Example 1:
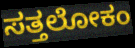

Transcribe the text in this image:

ಸತ್ತಲೋಕಂ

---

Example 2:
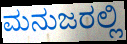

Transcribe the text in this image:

ಮನುಜರಲ್ಲಿ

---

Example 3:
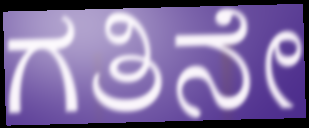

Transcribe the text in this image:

ಗತಿನೇ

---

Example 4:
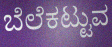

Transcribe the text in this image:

ಬೆಲೆಕಟ್ಟುವ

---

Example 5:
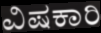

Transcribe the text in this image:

ವಿಷಕಾರಿ